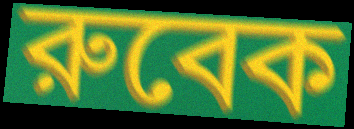
রুবেক